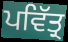
ਪਵਿੱਤ੍ਰ